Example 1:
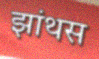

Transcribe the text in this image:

झांथस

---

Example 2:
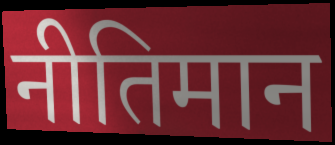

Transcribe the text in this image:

नीतिमान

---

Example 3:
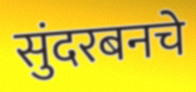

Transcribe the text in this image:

सुंदरबनचे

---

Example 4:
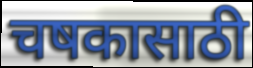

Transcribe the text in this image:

चषकासाठी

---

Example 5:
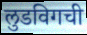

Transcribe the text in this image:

लुडविगची